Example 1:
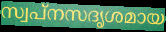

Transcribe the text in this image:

സ്വപ്നസദൃശമായ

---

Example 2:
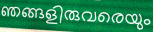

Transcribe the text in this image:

ഞങ്ങളിരുവരെയും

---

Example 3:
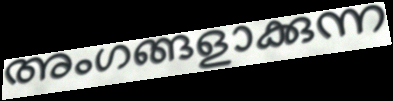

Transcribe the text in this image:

അംഗങ്ങളാക്കുന്ന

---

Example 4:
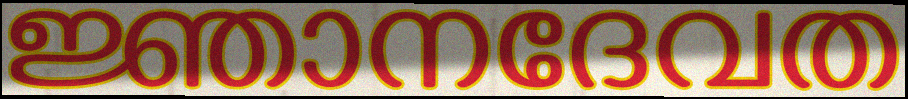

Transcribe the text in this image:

ജ്ഞാനദേവത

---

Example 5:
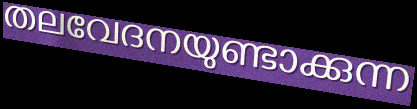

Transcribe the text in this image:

തലവേദനയുണ്ടാക്കുന്ന